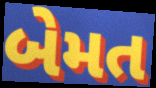
બેમત